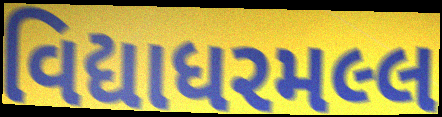
વિદ્યાધરમલ્લ